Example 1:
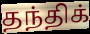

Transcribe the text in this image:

தந்திக்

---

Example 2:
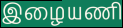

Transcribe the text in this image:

இழையணி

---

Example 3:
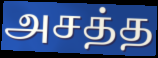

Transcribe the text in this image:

அசத்த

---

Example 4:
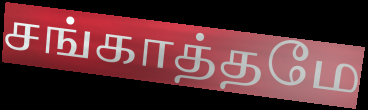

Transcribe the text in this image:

சங்காத்தமே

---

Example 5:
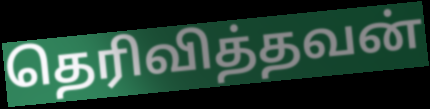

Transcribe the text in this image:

தெரிவித்தவன்